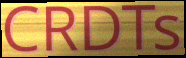
CRDTs